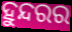
ହୁନ୍ଦରର